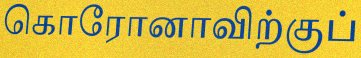
கொரோனாவிற்குப்